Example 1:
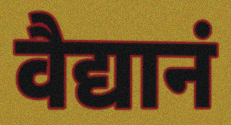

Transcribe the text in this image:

वैद्यानं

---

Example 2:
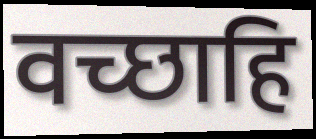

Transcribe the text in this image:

वच्छाहि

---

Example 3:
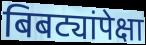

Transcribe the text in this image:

बिबट्यांपेक्षा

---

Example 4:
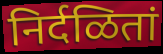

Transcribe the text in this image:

निर्दळितां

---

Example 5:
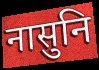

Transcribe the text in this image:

नासुनि